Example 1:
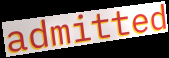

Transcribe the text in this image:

admitted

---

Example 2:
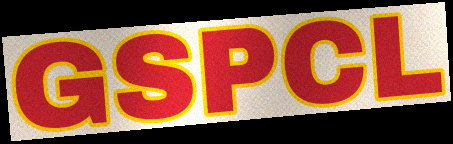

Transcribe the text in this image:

GSPCL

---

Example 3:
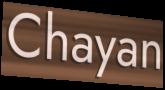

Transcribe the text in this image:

Chayan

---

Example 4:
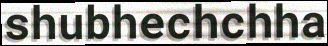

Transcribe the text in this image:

shubhechchha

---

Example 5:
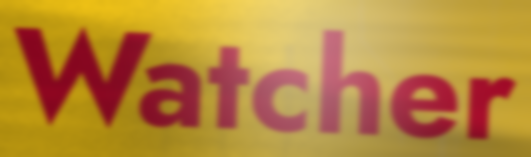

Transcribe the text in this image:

Watcher